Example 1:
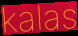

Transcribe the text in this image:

kalas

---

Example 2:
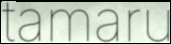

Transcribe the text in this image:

tamaru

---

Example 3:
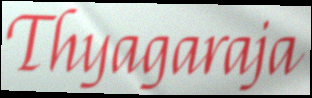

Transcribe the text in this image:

Thyagaraja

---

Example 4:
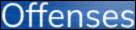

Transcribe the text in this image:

Offenses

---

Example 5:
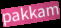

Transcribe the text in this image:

pakkam